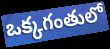
ఒక్కగంతులో